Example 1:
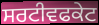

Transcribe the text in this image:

ਸਰਟੀਵਫਕੇਟ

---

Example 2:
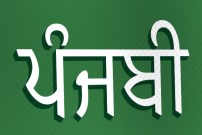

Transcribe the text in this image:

ਪੰਜਬੀ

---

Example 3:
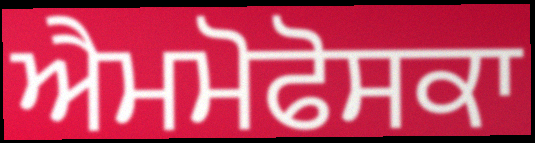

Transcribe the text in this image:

ਐਮਮੋਫੋਸਕਾ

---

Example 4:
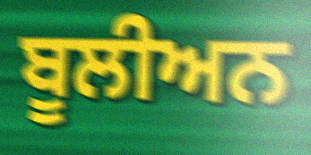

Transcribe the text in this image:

ਬੂਲੀਅਨ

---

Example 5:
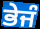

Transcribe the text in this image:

ਭੇਜੰ